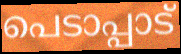
പെടാപ്പാട്